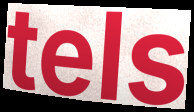
tels